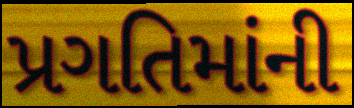
પ્રગતિમાંની